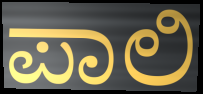
ಪಾಲಿ